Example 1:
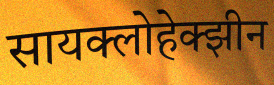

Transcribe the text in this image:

सायक्लोहेक्झीन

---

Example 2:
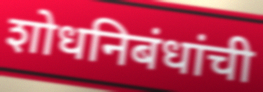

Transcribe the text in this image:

शोधनिबंधांची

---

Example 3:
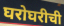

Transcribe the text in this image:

घरोघरीची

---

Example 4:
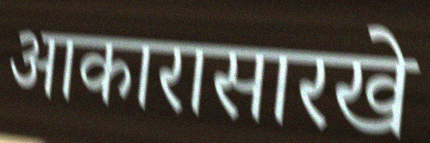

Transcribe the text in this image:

आकारासारखे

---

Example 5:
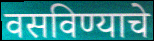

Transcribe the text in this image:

वसविण्याचे